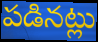
పడినట్లు